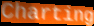
Charting